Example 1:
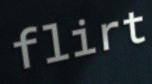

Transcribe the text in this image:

flirt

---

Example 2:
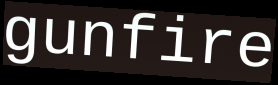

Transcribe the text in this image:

gunfire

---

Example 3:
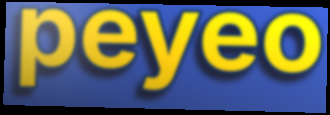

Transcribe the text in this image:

peyeo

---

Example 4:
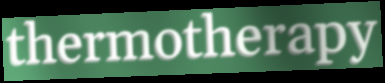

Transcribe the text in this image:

thermotherapy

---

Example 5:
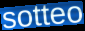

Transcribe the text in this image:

sotteo